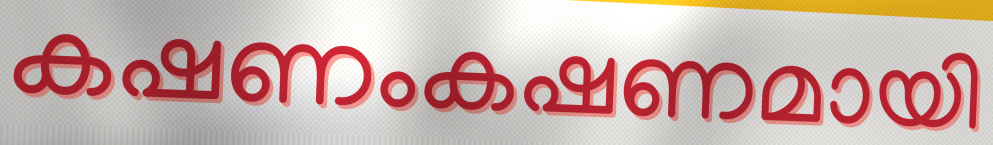
കഷണംകഷണമായി